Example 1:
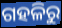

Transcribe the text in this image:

ଗହଳିରୁ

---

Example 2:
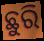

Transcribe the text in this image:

ଛୁରି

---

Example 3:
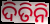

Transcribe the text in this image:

ଦିତିନି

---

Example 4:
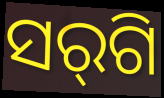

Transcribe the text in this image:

ସର୍‌ଗି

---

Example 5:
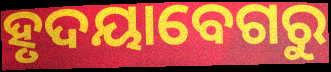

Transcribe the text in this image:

ହୃଦୟାବେଗରୁ